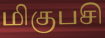
மிகுபசி